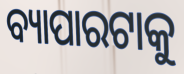
ବ୍ୟାପାରଟାକୁ